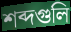
শব্দগুলি